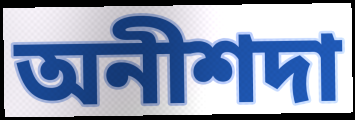
অনীশদা